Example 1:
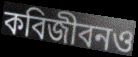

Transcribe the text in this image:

কবিজীবনও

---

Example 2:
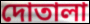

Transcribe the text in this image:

দোতালা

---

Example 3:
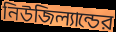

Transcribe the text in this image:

নিউজিল্যান্ডের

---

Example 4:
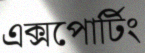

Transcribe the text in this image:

এক্সপোর্টিং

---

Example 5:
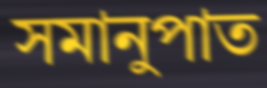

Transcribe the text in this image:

সমানুপাত